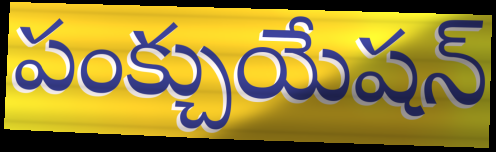
పంక్చుయేషన్